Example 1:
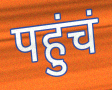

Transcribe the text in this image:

पहुंचं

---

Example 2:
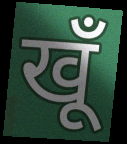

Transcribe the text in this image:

खूँ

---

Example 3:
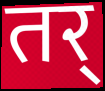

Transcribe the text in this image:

तर्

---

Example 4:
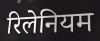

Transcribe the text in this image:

रिलेनियम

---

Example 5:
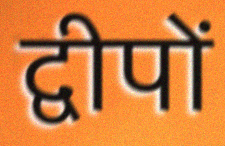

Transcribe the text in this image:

द्वीपों